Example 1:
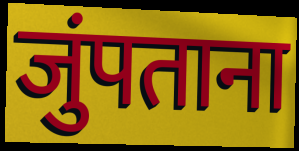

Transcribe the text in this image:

जुंपताना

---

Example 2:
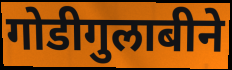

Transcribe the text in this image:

गोडीगुलाबीने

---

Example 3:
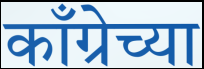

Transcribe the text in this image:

काँग्रेच्या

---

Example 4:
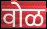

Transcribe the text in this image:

वोळ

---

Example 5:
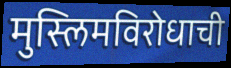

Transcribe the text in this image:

मुस्लिमविरोधाची